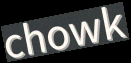
chowk